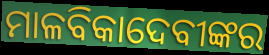
ମାଳବିକାଦେବୀଙ୍କର